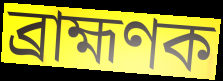
ব্ৰাহ্মণক